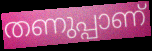
തണുപ്പാണ്